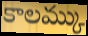
కాలమ్కు